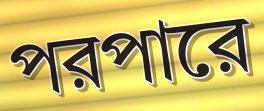
পরপারে